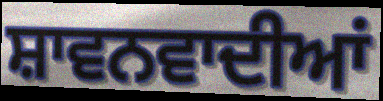
ਸ਼ਾਵਨਵਾਦੀਆਂ